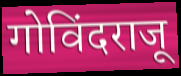
गोविंदराजू